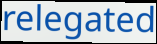
relegated